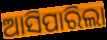
ଆସିପାରିଲା